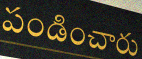
పండించారు